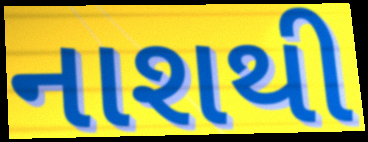
નાશથી